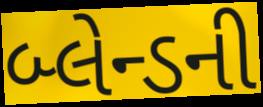
બ્લેન્ડની